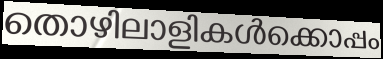
തൊഴിലാളികൾക്കൊപ്പം